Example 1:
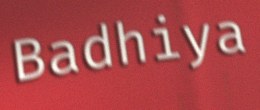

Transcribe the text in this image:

Badhiya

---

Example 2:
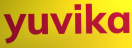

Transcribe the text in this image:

yuvika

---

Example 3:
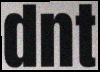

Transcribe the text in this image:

dnt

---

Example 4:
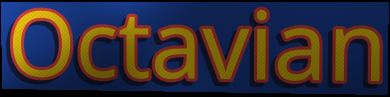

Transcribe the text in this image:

Octavian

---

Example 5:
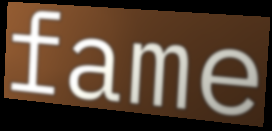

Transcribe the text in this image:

fame